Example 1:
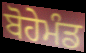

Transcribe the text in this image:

ਬੋਹੇਮੰਡ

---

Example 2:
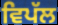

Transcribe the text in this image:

ਵਿਪੱਲ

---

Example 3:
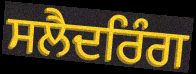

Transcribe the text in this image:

ਸਲੈਦਰਿੰਗ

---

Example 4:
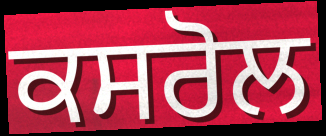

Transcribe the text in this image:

ਕਸਰੋਲ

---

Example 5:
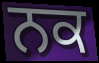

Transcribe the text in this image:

ਨਕ